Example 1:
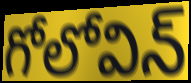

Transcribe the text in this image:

గోలోవిన్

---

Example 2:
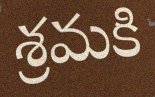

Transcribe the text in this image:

శ్రమకి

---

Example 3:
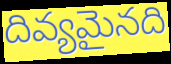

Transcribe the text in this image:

దివ్యమైనది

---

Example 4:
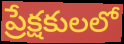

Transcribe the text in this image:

ప్రేక్షకులలో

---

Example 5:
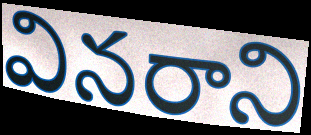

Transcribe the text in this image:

వినరాని